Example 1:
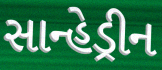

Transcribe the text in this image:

સાન્હેડ્રીન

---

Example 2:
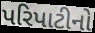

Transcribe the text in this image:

પરિપાટીનો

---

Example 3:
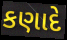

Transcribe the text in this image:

કણાદે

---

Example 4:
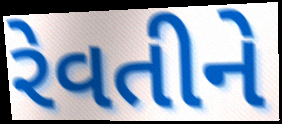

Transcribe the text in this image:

રેવતીને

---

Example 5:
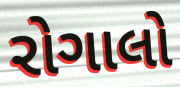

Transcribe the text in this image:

રોગાલો